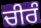
ਚੀਰੰ